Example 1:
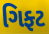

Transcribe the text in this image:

ગિફ્ટ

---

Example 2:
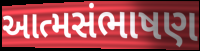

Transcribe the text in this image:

આત્મસંભાષણ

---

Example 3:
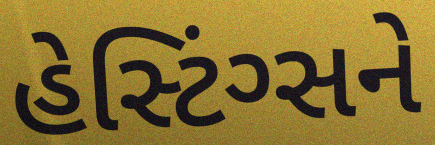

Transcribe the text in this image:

હેસ્ટિંગ્સને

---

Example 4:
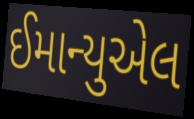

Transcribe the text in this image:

ઈમાન્યુએલ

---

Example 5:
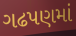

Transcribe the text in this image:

ગઢપણમાં